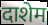
दाशेम